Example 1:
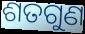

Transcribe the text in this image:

ଶତଗୁଣ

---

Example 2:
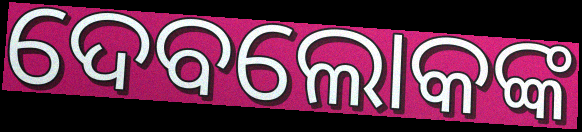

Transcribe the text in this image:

ଦେବଲୋକଙ୍କ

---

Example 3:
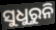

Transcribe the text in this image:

ସୁଧୁରୁନି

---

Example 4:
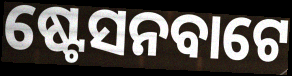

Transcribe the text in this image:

ଷ୍ଟେସନବାଟେ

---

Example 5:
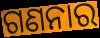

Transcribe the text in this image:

ଗଣନାର